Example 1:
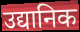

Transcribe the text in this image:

उद्यानिक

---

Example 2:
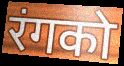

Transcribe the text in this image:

रंगको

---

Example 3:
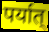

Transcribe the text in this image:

पर्यात्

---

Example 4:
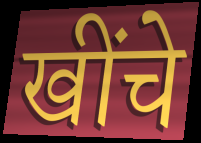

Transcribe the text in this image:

खींचे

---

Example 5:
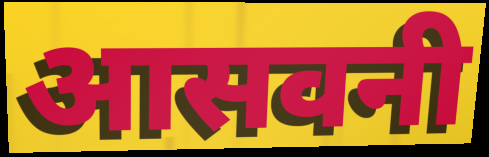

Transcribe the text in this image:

आसवनी